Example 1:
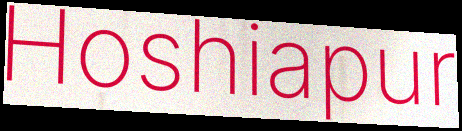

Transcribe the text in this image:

Hoshiapur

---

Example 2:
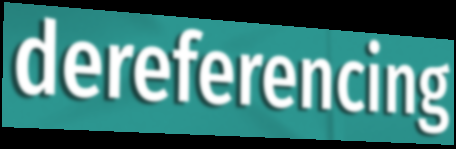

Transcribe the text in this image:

dereferencing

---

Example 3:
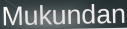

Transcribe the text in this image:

Mukundan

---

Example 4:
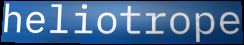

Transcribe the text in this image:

heliotrope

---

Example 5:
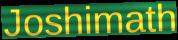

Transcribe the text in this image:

Joshimath